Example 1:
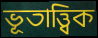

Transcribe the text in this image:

ভূতাত্ত্বিক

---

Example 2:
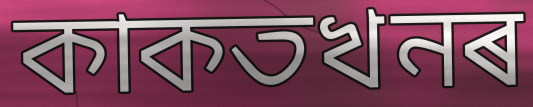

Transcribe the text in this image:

কাকতখনৰ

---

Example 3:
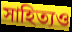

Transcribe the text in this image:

সাহিত্য়ও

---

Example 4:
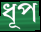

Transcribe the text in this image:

ধূপ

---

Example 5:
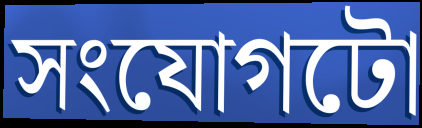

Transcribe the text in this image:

সংযোগটো